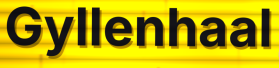
Gyllenhaal